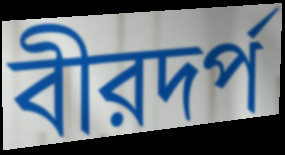
বীরদর্প